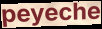
peyeche